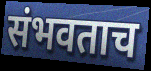
संभवताच